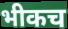
भीकच